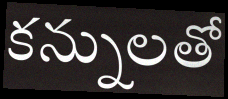
కన్నులతో